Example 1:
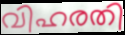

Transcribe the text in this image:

വിഹരതി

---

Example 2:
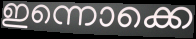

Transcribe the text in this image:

ഇന്നൊക്കെ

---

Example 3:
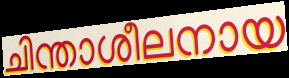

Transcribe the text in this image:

ചിന്താശീലനായ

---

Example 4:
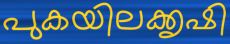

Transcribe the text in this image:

പുകയിലക്കൃഷി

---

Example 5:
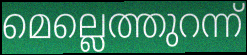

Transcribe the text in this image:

മെല്ലെത്തുറന്ന്